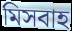
মিসবাহ